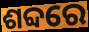
ଶବ୍ଦରେ